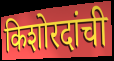
किशोरदांची